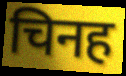
चिनह